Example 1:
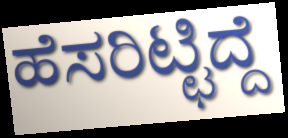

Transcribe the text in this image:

ಹೆಸರಿಟ್ಟಿದ್ದೆ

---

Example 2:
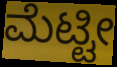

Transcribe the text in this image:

ಮೆಟ್ಟೀ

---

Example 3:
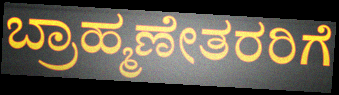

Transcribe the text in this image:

ಬ್ರಾಹ್ಮಣೇತರರಿಗೆ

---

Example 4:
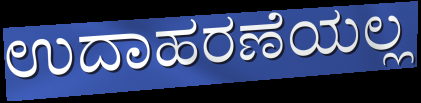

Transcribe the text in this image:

ಉದಾಹರಣೆಯಲ್ಲ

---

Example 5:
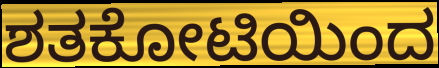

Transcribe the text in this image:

ಶತಕೋಟಿಯಿಂದ